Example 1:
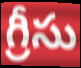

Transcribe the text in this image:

గ్రీసు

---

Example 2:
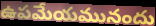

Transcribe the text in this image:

ఉపమేయమునందు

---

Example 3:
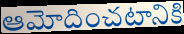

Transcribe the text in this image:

ఆమోదించటానికి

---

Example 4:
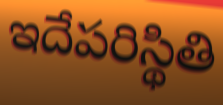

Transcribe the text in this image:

ఇదేపరిస్థితి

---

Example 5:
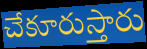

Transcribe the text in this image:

చేకూరుస్తారు